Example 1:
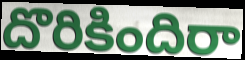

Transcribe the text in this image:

దొరికిందిరా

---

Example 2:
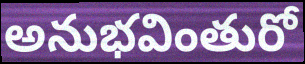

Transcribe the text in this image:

అనుభవింతురో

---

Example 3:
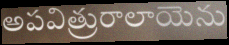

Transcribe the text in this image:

అపవిత్రురాలాయెను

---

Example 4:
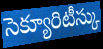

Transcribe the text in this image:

సెక్యూరిటీస్కు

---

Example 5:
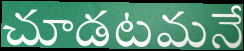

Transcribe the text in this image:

చూడటమనే